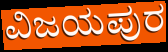
ವಿಜಯಪುರ